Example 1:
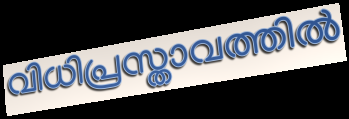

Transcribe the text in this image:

വിധിപ്രസ്താവത്തിൽ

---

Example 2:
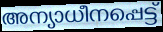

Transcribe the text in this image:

അന്യാധീനപ്പെട്ട്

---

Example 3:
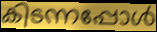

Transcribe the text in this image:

കിടന്നപ്പോൾ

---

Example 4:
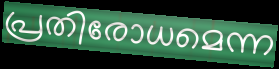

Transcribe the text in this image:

പ്രതിരോധമെന്ന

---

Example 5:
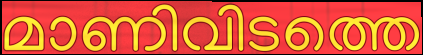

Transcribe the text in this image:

മാണിവിടത്തെ